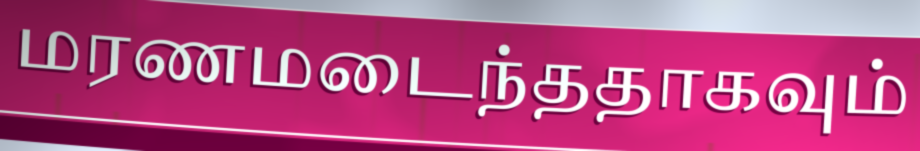
மரணமடைந்ததாகவும்